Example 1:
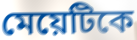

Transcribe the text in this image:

মেয়েটিকে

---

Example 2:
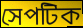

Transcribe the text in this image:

সেপটিক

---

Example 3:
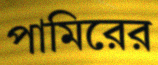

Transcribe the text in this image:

পামিরের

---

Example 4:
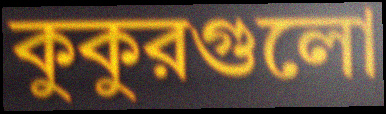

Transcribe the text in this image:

কুকুরগুলো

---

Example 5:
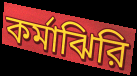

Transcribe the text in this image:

কর্মাঝিরি